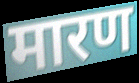
मारण